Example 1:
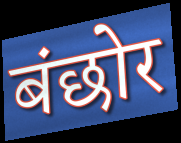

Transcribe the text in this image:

बंछोर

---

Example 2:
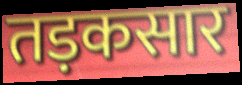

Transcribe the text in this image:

तड़कसार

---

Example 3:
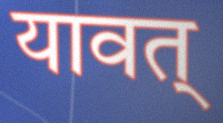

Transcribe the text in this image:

यावत्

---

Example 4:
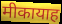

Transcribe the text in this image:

मीकायाह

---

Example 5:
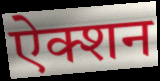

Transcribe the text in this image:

ऐक्शन